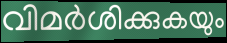
വിമർശിക്കുകയും